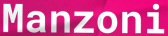
Manzoni